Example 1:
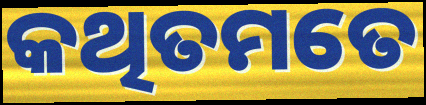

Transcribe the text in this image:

କଥିତମତେ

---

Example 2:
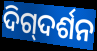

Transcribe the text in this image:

ଦିଗ୍‌ଦର୍ଶନ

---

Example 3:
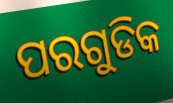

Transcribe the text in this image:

ପରଗୁଡିକ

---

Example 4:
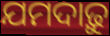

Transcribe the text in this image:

ଯମଦାଢ଼ୁ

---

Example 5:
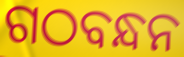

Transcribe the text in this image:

ଗଠବନ୍ଧନ